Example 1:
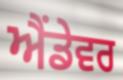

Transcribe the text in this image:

ਐਂਡੇਵਰ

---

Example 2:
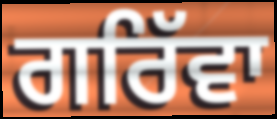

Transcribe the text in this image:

ਗਰਿੱਵਾ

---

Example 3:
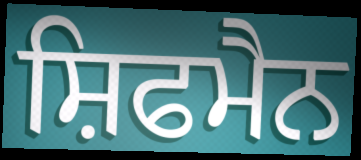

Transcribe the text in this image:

ਸ਼ਿਫਮੈਨ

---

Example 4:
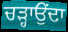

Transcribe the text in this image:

ਚੜ੍ਹਾਉਂਦਾ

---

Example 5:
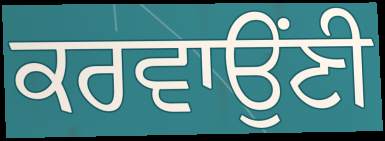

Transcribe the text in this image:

ਕਰਵਾਉਂਣੀ